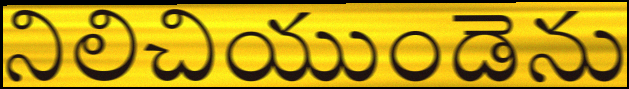
నిలిచియుండెను